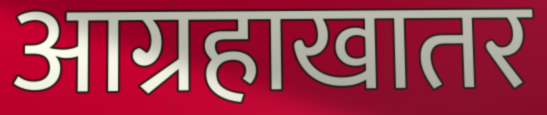
आग्रहाखातर